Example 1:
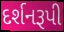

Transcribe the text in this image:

દર્શનરૂપી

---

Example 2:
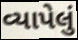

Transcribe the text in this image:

વ્યાપેલું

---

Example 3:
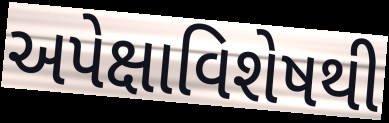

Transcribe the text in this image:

અપેક્ષાવિશેષથી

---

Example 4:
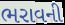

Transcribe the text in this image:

ભરાવની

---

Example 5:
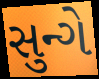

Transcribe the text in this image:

સુન્ગે